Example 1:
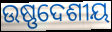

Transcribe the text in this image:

ଉଷ୍ଣଦେଶୀୟ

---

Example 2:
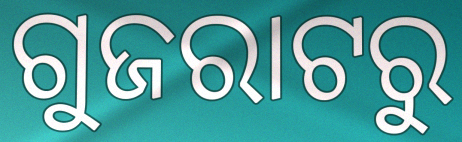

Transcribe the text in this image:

ଗୁଜରାଟରୁ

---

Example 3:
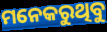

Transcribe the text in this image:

ମନେକରୁଥିବୁ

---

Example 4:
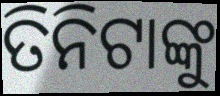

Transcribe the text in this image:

ତିନିଟାଙ୍କୁ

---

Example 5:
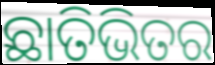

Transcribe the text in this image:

ଛାତିଭିତର